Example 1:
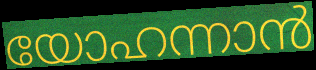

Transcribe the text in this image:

യോഹന്നാൻ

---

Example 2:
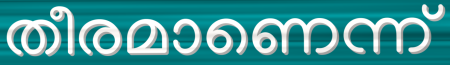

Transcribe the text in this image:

തീരമാണെന്ന്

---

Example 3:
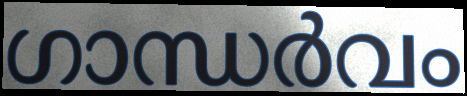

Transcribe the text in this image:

ഗാന്ധർവം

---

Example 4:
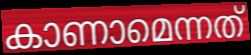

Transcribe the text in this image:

കാണാമെന്നത്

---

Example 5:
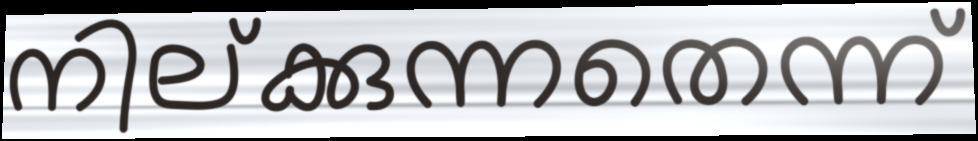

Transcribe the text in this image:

നില്ക്കുന്നതെന്ന്